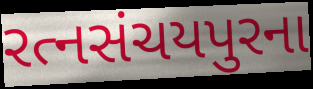
રત્નસંચયપુરના